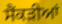
ਸੈਂਕੜੀਆਂ